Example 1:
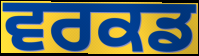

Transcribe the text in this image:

ਵਰਕਡ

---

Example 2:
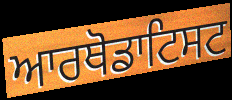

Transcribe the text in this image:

ਆਰਥੋਡਾਟਿਸਟ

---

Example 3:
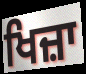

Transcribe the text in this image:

ਖਿਜ਼ਾ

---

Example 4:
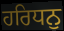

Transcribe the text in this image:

ਹਰਿਧਨੁ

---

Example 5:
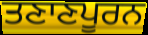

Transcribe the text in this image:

ਤਣਾਣਪੂਰਨ